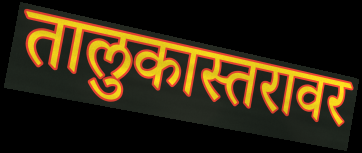
तालुकास्तरावर